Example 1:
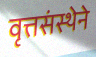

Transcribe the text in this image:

वृत्तसंस्थेने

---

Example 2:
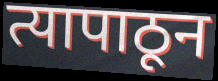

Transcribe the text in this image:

त्यापाठून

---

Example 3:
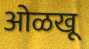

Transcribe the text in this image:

ओळखू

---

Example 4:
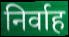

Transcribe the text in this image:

निर्वाह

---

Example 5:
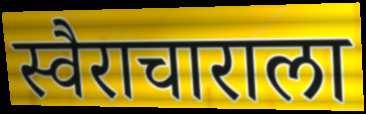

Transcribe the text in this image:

स्वैराचाराला